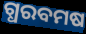
ଗ୍ଧରବମଷ